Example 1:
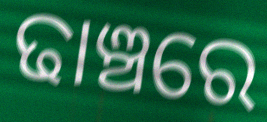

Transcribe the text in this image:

ଢାଞ୍ଚରେ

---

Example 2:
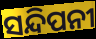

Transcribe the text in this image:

ସନ୍ଦିପନୀ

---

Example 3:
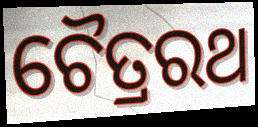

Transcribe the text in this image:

ଚୈତ୍ରରଥ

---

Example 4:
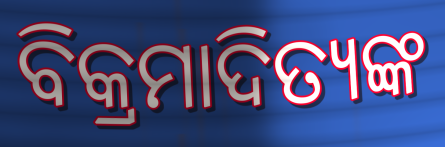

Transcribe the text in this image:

ବିକ୍ରମାଦିତ୍ୟଙ୍କ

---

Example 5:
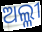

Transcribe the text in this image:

ଅଲ୍ଳୀ